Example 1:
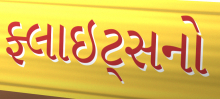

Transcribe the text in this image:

ફ્લાઇટ્સનો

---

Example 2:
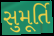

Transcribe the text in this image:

સુમૂર્તિ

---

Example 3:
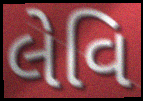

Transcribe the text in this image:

લેવિ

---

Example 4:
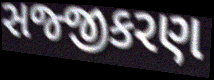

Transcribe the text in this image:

સજ્જીકરણ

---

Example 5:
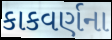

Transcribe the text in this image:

કાકવર્ણના